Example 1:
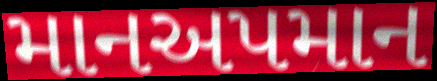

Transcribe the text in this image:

માનઅપમાન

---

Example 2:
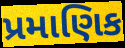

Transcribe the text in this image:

પ્રમાણિક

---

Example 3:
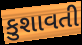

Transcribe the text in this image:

કુશાવતી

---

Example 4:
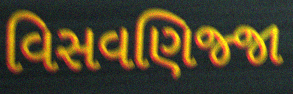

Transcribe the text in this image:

વિસવણિજ્જા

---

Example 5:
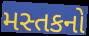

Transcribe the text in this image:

મસ્તકનો